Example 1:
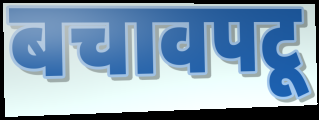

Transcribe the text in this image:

बचावपटू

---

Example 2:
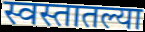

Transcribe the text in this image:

स्वस्तातल्या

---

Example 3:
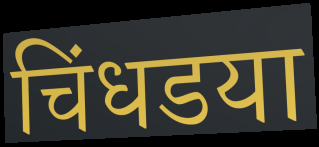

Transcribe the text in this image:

चिंधडया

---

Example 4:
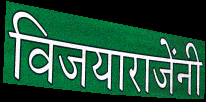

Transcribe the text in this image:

विजयाराजेंनी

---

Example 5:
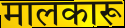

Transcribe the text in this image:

मालकारू